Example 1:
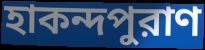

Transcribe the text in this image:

হাকন্দপুরাণ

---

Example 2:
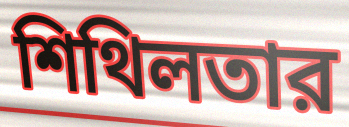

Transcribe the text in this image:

শিথিলতার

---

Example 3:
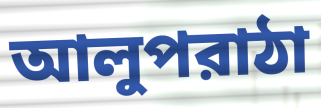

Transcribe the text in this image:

আলুপরাঠা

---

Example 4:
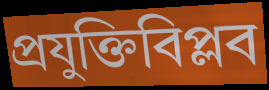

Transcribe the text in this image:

প্রযুক্তিবিপ্লব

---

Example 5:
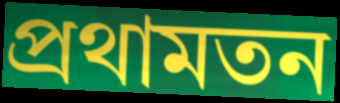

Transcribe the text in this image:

প্রথামতন